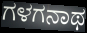
ಗಳಗನಾಥ